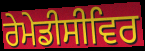
ਰੇਮੇਡੀਸੀਵਿਰ